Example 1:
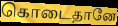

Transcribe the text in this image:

கொடைதானே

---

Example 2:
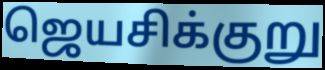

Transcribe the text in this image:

ஜெயசிக்குறு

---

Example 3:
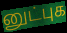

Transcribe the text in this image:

னுட்புக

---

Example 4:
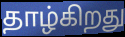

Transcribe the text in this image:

தாழ்கிறது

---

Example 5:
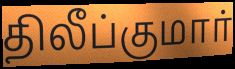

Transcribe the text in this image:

திலீப்குமார்